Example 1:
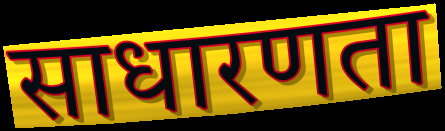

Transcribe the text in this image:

साधारणता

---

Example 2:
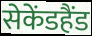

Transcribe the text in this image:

सेकेंडहैंड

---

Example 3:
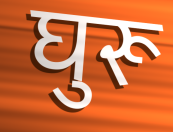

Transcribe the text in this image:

घुरू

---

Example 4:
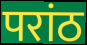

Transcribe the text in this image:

परांठ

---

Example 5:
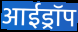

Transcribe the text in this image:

आईड्रॉप